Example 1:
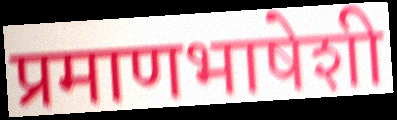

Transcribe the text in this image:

प्रमाणभाषेशी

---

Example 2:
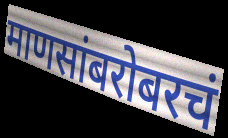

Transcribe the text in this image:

माणसांबरोबरचं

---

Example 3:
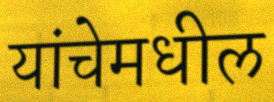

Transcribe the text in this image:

यांचेमधील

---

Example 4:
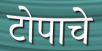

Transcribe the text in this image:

टोपाचे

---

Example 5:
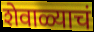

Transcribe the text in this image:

शेवाळ्याचं